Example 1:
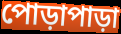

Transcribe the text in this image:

পোড়াপাড়া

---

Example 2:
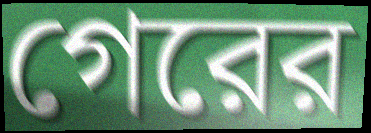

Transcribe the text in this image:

গেরের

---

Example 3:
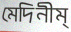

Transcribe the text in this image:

মেদিনীম্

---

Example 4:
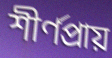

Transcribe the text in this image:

শীর্ণপ্রায়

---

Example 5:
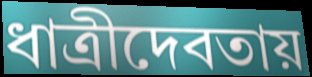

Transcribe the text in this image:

ধাত্রীদেবতায়